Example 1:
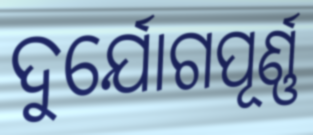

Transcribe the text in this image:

ଦୁର୍ଯୋଗପୂର୍ଣ୍ଣ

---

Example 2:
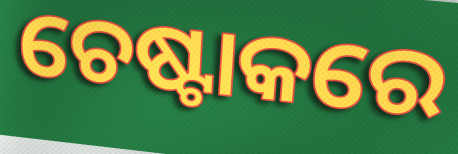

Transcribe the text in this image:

ଚେଷ୍ଟାକରେ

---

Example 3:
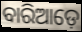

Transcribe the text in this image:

ବାରିଆଡ଼େ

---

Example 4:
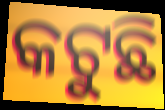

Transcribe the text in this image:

କଟୁଛି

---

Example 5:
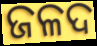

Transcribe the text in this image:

ଜଳଦ